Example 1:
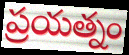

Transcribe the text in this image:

ప్రయత్నం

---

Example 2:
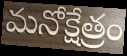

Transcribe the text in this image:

మనోక్షేత్రం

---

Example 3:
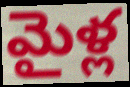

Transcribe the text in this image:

మైళ్ల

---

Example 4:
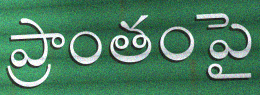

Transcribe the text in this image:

ప్రాంతంపై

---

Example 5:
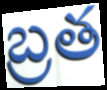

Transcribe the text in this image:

బ్రత